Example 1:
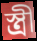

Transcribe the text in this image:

স্ত্রী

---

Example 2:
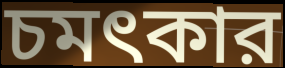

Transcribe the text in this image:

চমৎকার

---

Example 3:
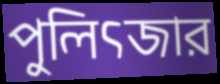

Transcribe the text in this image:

পুলিৎজার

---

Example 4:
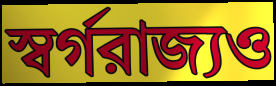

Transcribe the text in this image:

স্বর্গরাজ্যও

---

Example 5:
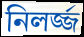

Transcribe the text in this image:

নিলর্জ্জ